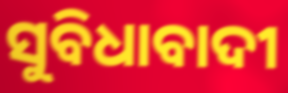
ସୁବିଧାବାଦୀ